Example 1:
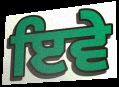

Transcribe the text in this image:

ਇਵੇ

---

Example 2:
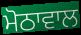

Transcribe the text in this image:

ਮੋਠਾਵਾਲ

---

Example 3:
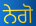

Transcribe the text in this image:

ਨੇਗੋ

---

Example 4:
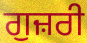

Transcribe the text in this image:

ਗੁਜ਼ਰੀ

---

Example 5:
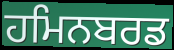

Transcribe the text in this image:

ਹਮਿਨਬਰਡ